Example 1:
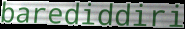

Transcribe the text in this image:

barediddiri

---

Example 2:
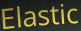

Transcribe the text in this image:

Elastic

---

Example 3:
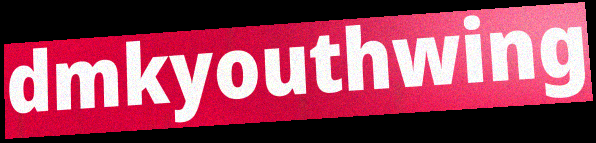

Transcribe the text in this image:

dmkyouthwing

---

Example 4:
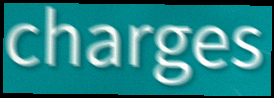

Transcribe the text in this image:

charges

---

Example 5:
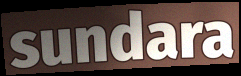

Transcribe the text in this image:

sundara